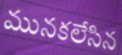
మునకలేసిన